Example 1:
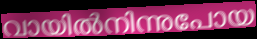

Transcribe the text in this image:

വായിൽനിന്നുപോയ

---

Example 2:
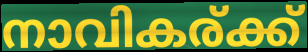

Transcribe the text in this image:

നാവികര്ക്ക്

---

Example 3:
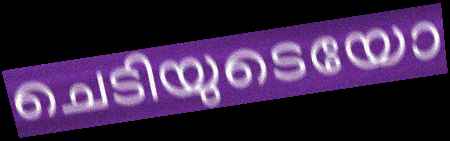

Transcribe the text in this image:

ചെടിയുടെയോ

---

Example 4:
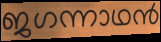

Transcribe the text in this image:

ജഗന്നാഥൻ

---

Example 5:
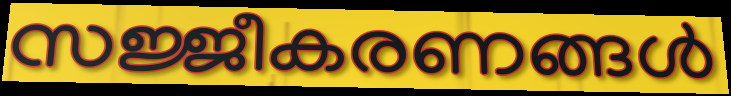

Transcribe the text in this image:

സജ്ജീകരണങ്ങൾ